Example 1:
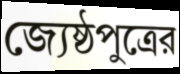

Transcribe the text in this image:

জ্যেষ্ঠপুত্রের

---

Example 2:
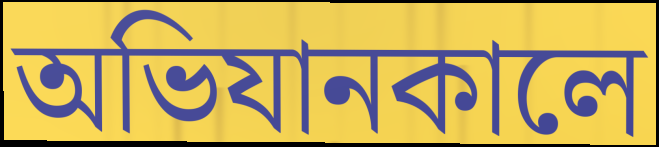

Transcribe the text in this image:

অভিযানকালে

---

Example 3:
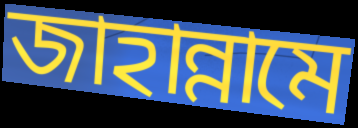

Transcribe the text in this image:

জাহান্নামে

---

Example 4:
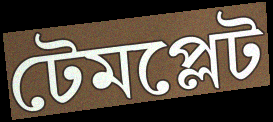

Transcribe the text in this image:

টেমপ্লেট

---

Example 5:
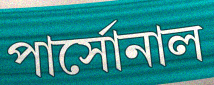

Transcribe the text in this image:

পার্সোনাল